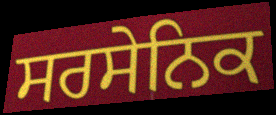
ਸਰਸੇਨਿਕ